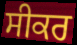
ਸੀਕਰ